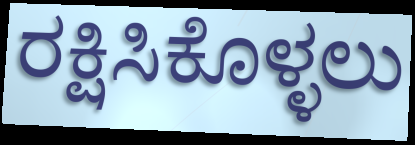
ರಕ್ಷಿಸಿಕೊಳ್ಳಲು